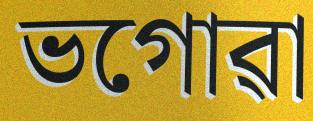
ভগোৱা